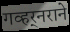
गव्हर्नराने